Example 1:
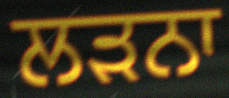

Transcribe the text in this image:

ਲੜਨਾ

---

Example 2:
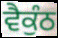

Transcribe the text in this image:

ਵੈਕੁੰਠ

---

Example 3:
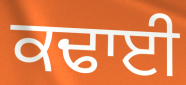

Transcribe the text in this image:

ਕਢਾਈ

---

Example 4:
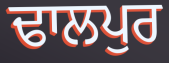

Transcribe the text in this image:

ਢਾਲਪੁਰ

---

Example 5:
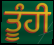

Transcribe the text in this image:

ਤੂੰਹੀ